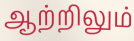
ஆற்றிலும்